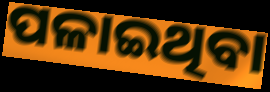
ପଳାଇଥିବା